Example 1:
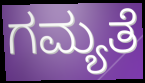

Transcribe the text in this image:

ಗಮ್ಯತೆ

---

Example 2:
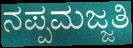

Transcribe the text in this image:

ನಪ್ಪಮಜ್ಜತಿ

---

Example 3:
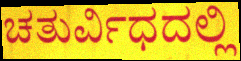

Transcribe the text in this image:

ಚತುರ್ವಿಧದಲ್ಲಿ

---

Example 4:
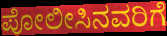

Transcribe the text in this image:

ಪೋಲೀಸಿನವರಿಗೆ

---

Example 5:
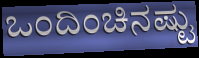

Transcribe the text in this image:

ಒಂದಿಂಚಿನಷ್ಟು